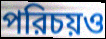
পরিচয়ও